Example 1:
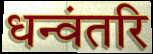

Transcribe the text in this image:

धन्वंतरि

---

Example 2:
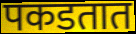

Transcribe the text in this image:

पकडतात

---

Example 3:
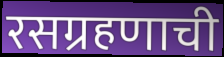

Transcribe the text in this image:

रसग्रहणाची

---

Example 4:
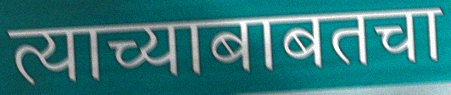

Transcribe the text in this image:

त्याच्याबाबतचा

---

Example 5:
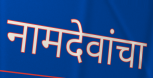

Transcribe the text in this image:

नामदेवांचा